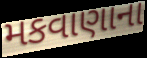
મકવાણાના